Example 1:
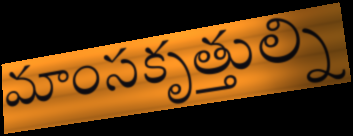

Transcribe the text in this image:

మాంసకృత్తుల్ని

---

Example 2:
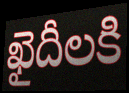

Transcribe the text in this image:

ఖైదీలకి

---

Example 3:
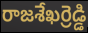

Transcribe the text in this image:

రాజశేఖర్రెడ్డి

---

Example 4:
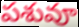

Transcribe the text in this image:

పశువూ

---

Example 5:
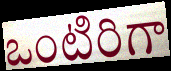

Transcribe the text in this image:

ఒంటిరిగా